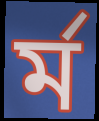
র্ম